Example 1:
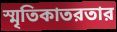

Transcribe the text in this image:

স্মৃতিকাতরতার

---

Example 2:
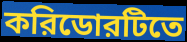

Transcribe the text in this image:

করিডোরটিতে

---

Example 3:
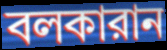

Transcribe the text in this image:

বলকারান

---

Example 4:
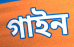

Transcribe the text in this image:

গাইন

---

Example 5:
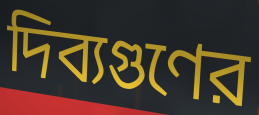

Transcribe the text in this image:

দিব্যগুণের